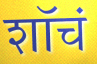
शॉचं